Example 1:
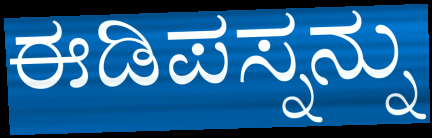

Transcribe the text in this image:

ಈಡಿಪಸ್ನನ್ನು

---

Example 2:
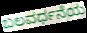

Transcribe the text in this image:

ಬಲವರ್ಧನೆಯ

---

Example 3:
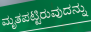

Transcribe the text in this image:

ಮೃತಪಟ್ಟಿರುವುದನ್ನು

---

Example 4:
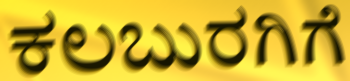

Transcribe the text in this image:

ಕಲಬುರಗಿಗೆ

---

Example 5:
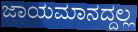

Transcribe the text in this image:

ಜಾಯಮಾನದ್ದಲ್ಲ